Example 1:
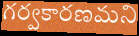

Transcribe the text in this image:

గర్వకారణమని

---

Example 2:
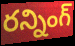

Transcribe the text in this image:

రన్నింగ్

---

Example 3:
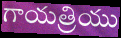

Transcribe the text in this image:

గాయత్రియు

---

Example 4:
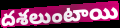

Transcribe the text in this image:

దశలుంటాయి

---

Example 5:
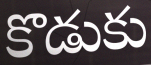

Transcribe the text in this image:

కొడుకు